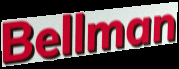
Bellman